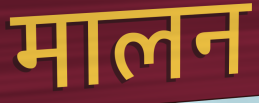
मालन